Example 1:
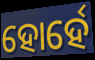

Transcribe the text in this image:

ହୋର୍ହେ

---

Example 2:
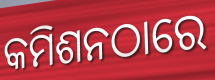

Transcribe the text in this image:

କମିଶନଠାରେ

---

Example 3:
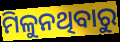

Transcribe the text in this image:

ମିଳୁନଥିବାରୁ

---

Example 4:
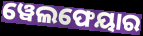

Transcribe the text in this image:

ୱେଲଫେୟାର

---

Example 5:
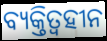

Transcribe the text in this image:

ବ୍ୟକ୍ତିତ୍ୱହୀନ